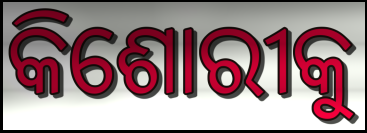
କିଶୋରୀକୁ